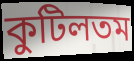
কুটিলতম